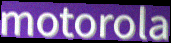
motorola